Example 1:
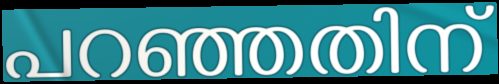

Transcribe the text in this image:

പറഞ്ഞതിന്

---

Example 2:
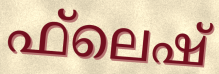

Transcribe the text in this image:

ഫ്‌ലെഷ്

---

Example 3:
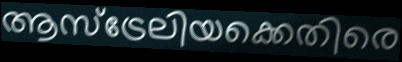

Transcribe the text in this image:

ആസ്ട്രേലിയക്കെതിരെ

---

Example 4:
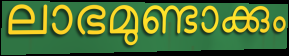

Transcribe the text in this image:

ലാഭമുണ്ടാക്കും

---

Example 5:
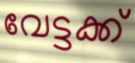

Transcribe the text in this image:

വേട്ടക്ക്